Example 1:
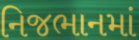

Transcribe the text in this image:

નિજભાનમાં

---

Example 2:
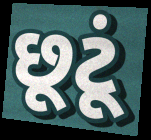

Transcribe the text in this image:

છૂટૂં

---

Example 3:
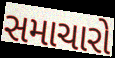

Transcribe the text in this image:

સમાચારો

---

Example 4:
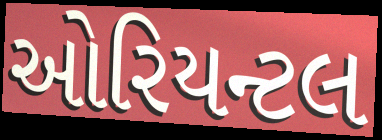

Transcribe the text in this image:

ઓરિયન્ટલ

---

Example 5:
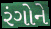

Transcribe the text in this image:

રંગોને